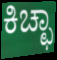
ಕಿಚ್ಛಾ